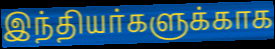
இந்தியர்களுக்காக